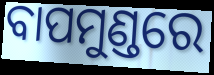
ବାପମୁଣ୍ଡରେ